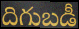
దిగుబడీ